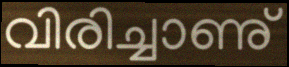
വിരിച്ചാണു്